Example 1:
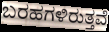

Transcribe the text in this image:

ಬರಹಗಳಿರುತ್ತವೆ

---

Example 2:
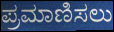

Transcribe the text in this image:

ಪ್ರಮಾಣಿಸಲು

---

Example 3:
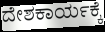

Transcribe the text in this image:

ದೇಶಕಾರ್ಯಕ್ಕೆ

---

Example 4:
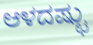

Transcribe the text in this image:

ಆಳದಷ್ಟು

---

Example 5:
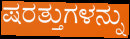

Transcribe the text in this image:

ಷರತ್ತುಗಳನ್ನು